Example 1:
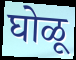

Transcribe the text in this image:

घोळू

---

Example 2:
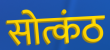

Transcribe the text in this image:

सोत्कंठ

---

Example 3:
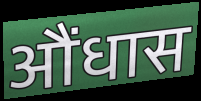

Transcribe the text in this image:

औंधास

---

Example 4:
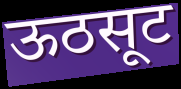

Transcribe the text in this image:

ऊठसूट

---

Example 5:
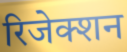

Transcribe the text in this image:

रिजेक्शन